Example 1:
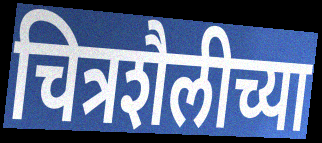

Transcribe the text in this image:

चित्रशैलीच्या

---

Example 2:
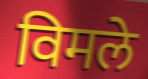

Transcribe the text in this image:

विमले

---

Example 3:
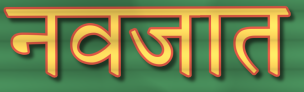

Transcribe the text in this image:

नवजात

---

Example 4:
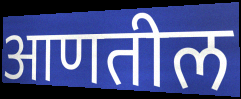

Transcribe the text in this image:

आणतील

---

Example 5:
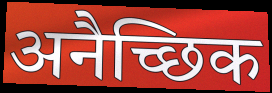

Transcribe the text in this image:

अनैच्छिक